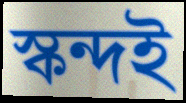
স্কন্দই